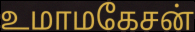
உமாமகேசன்